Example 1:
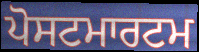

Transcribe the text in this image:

ਪੋਸਟਮਾਰਟਮ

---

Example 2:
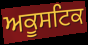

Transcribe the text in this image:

ਅਕੂਸਟਿਕ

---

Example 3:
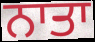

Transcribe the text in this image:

ਨਾਤਾ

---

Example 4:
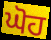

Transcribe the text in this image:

ਘੋਹ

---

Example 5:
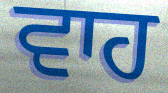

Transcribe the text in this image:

ਵਾਹ